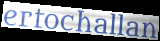
ertochallan